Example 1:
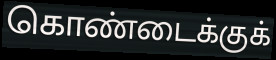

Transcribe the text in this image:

கொண்டைக்குக்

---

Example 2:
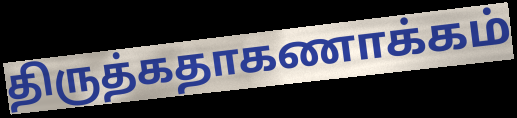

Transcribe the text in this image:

திருத்கதாகணாக்கம்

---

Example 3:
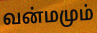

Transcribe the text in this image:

வன்மமும்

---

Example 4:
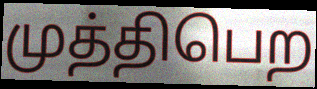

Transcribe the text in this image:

முத்திபெற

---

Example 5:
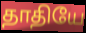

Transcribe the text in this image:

தாதியே